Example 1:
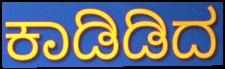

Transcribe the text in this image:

ಕಾಡಿಡಿದ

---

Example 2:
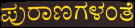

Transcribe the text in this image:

ಪುರಾಣಗಳಂತೆ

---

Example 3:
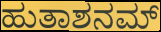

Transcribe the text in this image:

ಹುತಾಶನಮ್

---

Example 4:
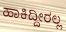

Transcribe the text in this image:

ಹಾಕಿದ್ದೀರಲ್ಲ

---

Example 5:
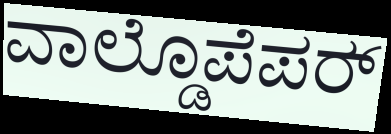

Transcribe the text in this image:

ವಾಲ್ಡೊಪೆಪರ್‍